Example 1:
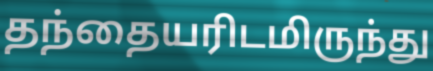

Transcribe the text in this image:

தந்தையரிடமிருந்து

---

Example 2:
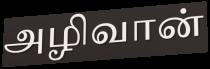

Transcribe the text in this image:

அழிவான்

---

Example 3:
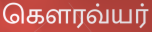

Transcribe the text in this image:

கௌரவ்யர்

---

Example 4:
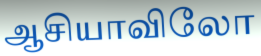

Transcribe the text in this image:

ஆசியாவிலோ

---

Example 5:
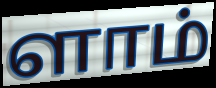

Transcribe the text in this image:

ளாம்